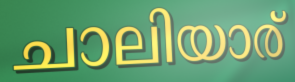
ചാലിയാര്